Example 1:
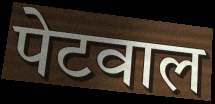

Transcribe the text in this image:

पेटवाल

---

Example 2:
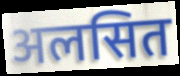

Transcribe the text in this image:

अलसित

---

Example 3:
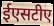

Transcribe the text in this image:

ईएसटीए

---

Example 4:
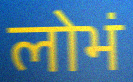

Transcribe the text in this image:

लोभं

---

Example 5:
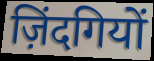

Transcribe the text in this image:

ज़िंदगियों